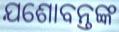
ଯଶୋବନ୍ତଙ୍କ